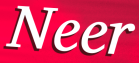
Neer